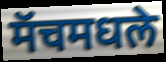
मॅचमधले